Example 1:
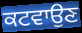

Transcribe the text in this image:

ਕਟਵਾਉਣ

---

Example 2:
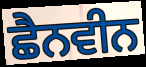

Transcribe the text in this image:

ਛੈਨਵੀਨ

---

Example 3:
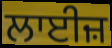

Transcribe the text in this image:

ਲਾਈਜ਼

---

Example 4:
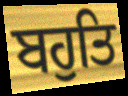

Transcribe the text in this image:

ਬਹੁਤਿ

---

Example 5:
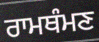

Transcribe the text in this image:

ਰਾਮਥੰਮਣ